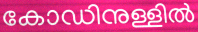
കോഡിനുള്ളിൽ